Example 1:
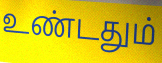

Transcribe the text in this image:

உண்டதும்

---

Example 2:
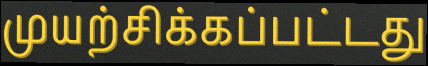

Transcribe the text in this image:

முயற்சிக்கப்பட்டது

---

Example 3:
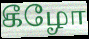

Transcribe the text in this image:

கீழோ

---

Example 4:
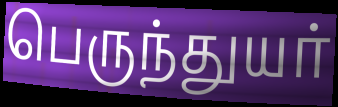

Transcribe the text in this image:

பெருந்துயர்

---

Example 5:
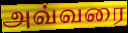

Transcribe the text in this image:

அவ்வரை